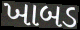
ખાબડ